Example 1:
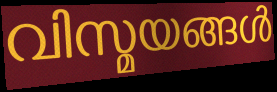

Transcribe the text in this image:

വിസ്മയങ്ങൾ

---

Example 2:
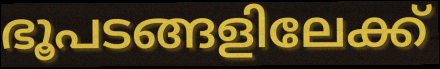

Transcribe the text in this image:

ഭൂപടങ്ങളിലേക്ക്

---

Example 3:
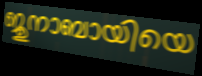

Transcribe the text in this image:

ജുനാബായിയെ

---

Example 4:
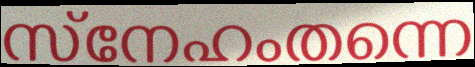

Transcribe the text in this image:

സ്‌നേഹംതന്നെ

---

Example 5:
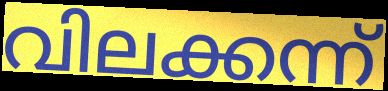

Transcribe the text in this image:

വിലക്കന്ന്